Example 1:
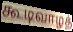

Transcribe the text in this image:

கூடிவாழத்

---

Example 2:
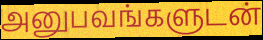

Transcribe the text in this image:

அனுபவங்களுடன்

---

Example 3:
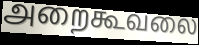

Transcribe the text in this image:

அறைகூவலை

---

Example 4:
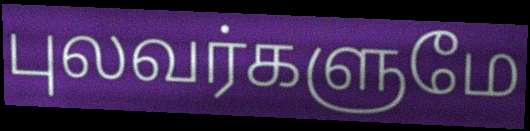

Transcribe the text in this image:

புலவர்களுமே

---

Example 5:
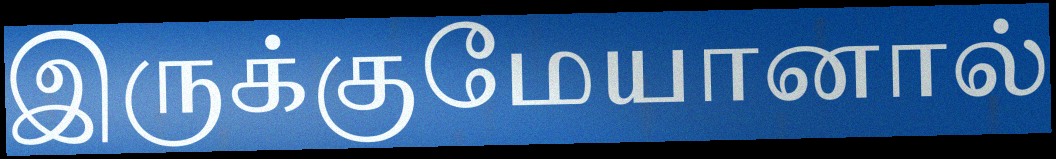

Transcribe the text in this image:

இருக்குமேயானால்